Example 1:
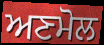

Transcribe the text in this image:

ਅਣਮੋਲ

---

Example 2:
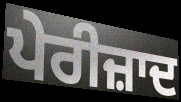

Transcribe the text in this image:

ਪੇਰੀਜ਼ਾਦ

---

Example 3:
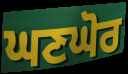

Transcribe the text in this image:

ਘਣਘੋਰ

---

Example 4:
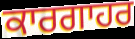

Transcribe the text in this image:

ਕਾਰਗਾਹਰ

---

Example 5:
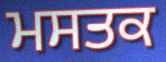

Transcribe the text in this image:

ਮਸਤਕ